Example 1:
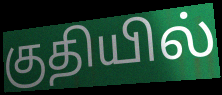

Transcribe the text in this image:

குதியில்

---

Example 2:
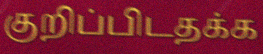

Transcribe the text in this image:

குறிப்பிடதக்க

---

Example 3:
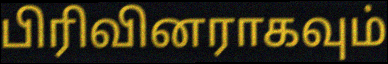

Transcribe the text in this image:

பிரிவினராகவும்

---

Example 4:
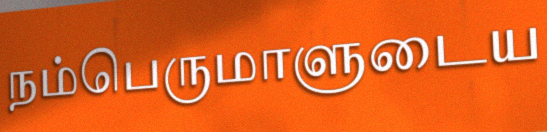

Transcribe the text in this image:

நம்பெருமாளுடைய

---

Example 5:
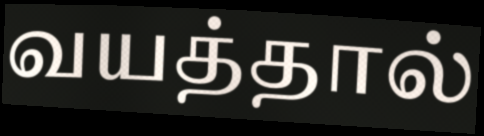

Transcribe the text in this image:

வயத்தால்